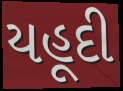
યહૂદી